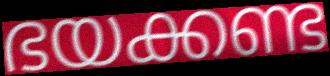
ഭയക്കണ്ട